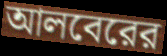
আলবেরের